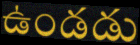
ఉండడు